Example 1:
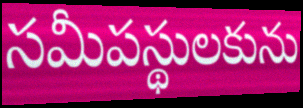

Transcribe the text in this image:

సమీపస్థులకును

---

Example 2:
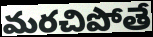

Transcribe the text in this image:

మరచిపోతే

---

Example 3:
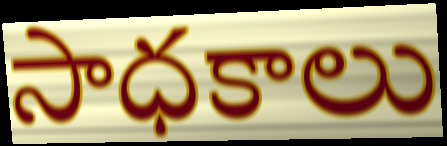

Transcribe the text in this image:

సాధకాలు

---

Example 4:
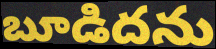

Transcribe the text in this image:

బూడిదను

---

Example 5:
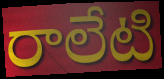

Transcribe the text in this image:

రాలేటి